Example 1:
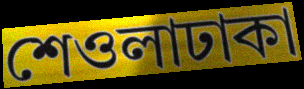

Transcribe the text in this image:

শেওলাঢাকা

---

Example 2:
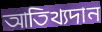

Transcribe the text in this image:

আতিথ্যদান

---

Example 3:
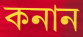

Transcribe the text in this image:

কনান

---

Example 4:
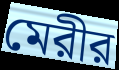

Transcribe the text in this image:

মেরীর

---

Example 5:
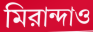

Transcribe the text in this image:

মিরান্দাও